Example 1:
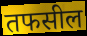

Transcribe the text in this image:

तफसील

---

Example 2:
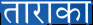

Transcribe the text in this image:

ताराका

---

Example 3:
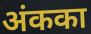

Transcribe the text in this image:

अंकका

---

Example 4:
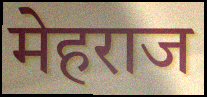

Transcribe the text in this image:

मेहराज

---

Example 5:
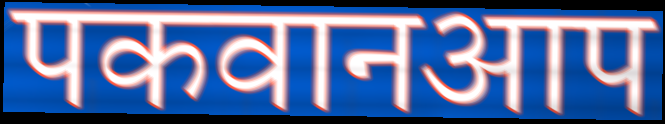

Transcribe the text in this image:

पकवानआप